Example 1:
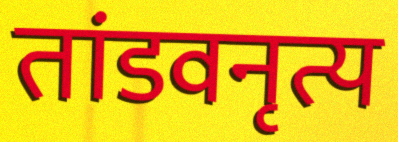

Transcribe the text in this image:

तांडवनृत्य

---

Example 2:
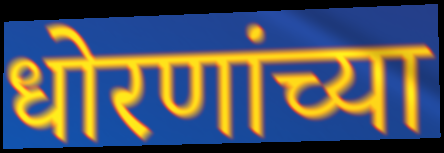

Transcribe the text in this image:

धोरणांच्या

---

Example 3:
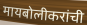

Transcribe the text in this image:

मायबोलीकरांची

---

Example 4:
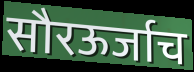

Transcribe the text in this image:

सौरऊर्जाच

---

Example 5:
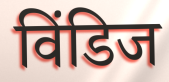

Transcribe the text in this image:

विंडिज